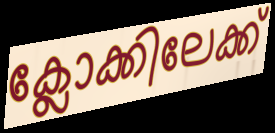
ക്ലോക്കിലേക്ക്